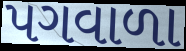
પગવાળા